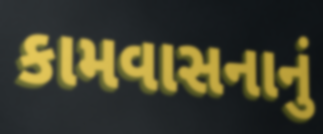
કામવાસનાનું